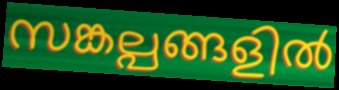
സങ്കല്പങ്ങളിൽ